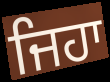
ਜਿਹਾ